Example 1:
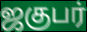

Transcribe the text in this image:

ஜகுபர்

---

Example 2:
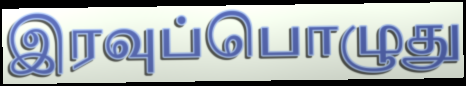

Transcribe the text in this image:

இரவுப்பொழுது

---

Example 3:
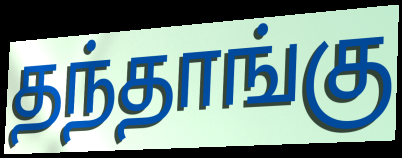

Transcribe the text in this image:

தந்தாங்கு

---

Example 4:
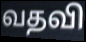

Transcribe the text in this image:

வதவி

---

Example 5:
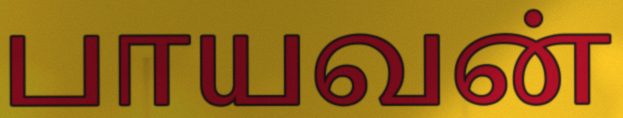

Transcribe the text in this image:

பாயவன்